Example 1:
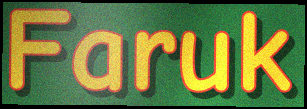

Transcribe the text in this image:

Faruk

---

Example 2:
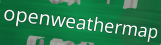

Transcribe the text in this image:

openweathermap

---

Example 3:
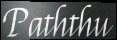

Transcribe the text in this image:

Paththu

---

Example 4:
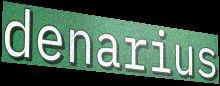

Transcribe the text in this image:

denarius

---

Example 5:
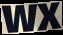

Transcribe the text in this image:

wx